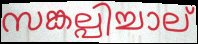
സങ്കല്പിച്ചാല്